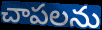
చాపలను